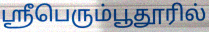
ஸ்ரீபெரும்பூதூரில்